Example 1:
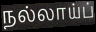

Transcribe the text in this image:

நல்லாய்ப்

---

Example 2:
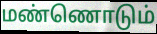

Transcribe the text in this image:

மண்ணொடும்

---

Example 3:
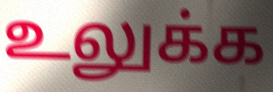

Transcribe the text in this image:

உலுக்க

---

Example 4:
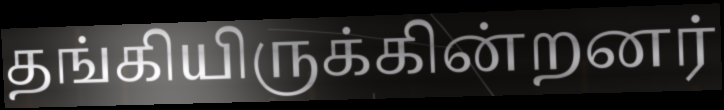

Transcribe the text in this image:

தங்கியிருக்கின்றனர்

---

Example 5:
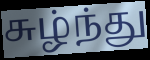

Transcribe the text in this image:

சுழ்ந்து